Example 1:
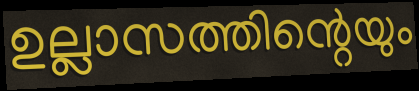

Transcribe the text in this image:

ഉല്ലാസത്തിന്റെയും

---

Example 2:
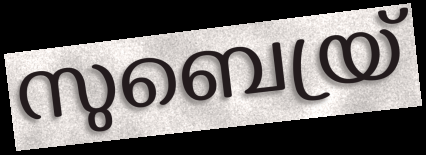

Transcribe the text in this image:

സുബെയ്ര്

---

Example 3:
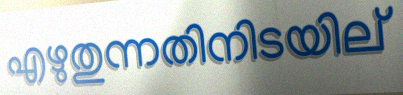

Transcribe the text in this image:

എഴുതുന്നതിനിടയില്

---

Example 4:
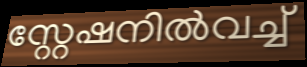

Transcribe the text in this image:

സ്റ്റേഷനിൽവച്ച്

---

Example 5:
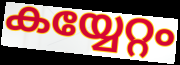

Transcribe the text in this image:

കയ്യേറ്റം